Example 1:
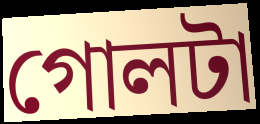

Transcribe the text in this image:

গোলটা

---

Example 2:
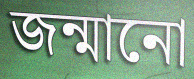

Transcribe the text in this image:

জন্মানো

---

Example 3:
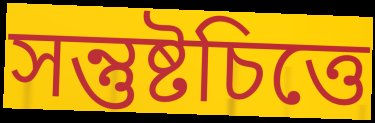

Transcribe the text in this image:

সন্তুষ্টচিত্তে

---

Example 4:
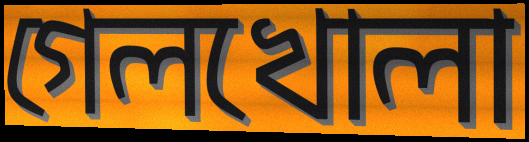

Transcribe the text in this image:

গেলখোলা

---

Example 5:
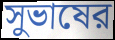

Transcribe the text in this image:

সুভাষের